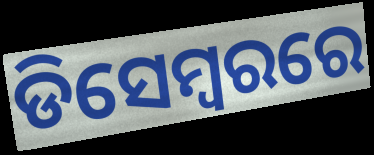
ଡିସେମ୍ବରରେ